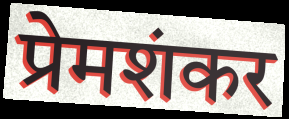
प्रेमशंकर